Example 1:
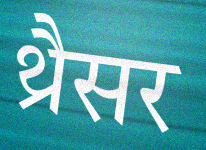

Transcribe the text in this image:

थ्रैसर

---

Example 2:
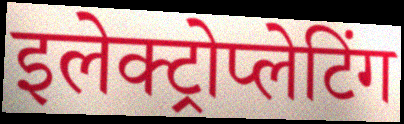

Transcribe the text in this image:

इलेक्ट्रोप्लेटिंग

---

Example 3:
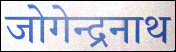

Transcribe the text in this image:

जोगेन्द्रनाथ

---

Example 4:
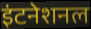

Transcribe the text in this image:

इंटनेशनल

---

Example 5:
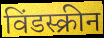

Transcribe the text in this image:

विंडस्क्रीन